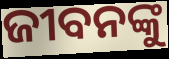
ଜୀବନଙ୍କୁ